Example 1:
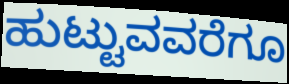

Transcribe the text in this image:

ಹುಟ್ಟುವವರೆಗೂ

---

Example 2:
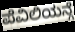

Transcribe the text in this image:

ಪೆವಿಲಿಯನ್ಗೆ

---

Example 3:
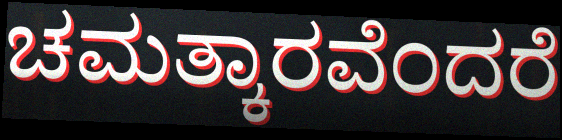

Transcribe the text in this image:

ಚಮತ್ಕಾರವೆಂದರೆ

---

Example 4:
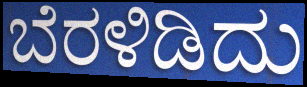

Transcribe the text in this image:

ಬೆರಳಿಡಿದು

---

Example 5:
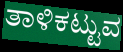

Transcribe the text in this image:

ತಾಳಿಕಟ್ಟುವ